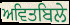
ਅਵਿਤਬਿਲੇ